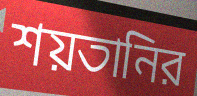
শয়তানির